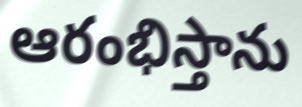
ఆరంభిస్తాను